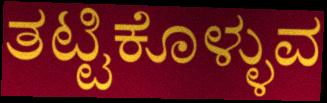
ತಟ್ಟಿಕೊಳ್ಳುವ